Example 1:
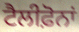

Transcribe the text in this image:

ਟੈਲੀਫ਼ੋਨਾਂ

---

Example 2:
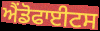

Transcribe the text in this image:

ਐਂਡੋਫਾਈਟਸ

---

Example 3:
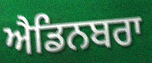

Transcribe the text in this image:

ਐਡਿਨਬਰਾ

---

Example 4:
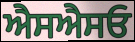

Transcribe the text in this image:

ਐਸਐਸਓ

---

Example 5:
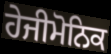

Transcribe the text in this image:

ਹੇਜੀਮੋਨਿਕ